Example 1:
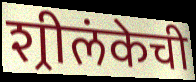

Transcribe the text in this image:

श्रीलंकेची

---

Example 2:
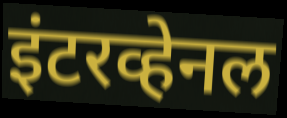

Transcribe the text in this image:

इंटरव्हेनल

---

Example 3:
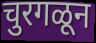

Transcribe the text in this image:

चुरगळून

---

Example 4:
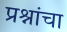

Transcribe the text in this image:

प्रश्नांचा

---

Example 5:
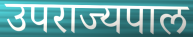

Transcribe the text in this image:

उपराज्यपाल